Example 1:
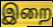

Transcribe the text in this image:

இறை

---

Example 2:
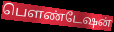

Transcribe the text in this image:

பௌண்டேஷன்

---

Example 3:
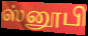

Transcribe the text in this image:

ஸ்னூபி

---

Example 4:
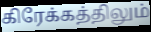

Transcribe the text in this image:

கிரேக்கத்திலும்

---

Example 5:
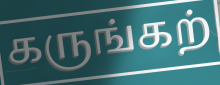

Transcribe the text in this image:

கருங்கற்